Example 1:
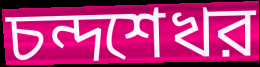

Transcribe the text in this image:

চন্দশেখর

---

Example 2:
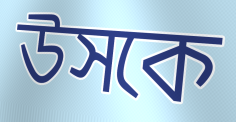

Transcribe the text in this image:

উসকে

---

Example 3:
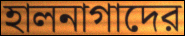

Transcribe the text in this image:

হালনাগাদের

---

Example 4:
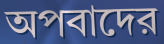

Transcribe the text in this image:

অপবাদের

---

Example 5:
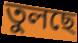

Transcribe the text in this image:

তুলছে